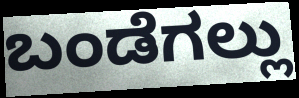
ಬಂಡೆಗಲ್ಲು